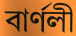
বাৰ্ণলী